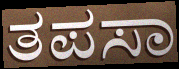
ತಪಸಾ